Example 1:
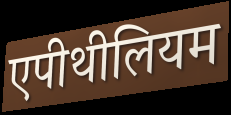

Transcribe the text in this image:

एपीथीलियम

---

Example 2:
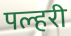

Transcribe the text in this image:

पल्हरी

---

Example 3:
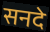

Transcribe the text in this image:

सनदे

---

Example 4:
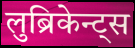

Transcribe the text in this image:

लुब्रिकेन्ट्स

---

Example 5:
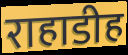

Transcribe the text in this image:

राहाडीह